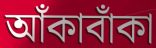
আঁকাবাঁকা